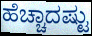
ಹೆಚ್ಚಾದಷ್ಟು